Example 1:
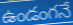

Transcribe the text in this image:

ఉండంగనే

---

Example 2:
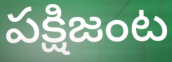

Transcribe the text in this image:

పక్షిజంట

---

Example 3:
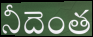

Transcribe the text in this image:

నీదెంత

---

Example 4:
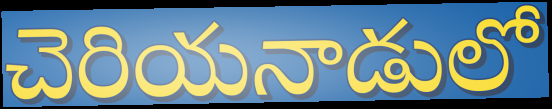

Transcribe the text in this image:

చెరియనాడులో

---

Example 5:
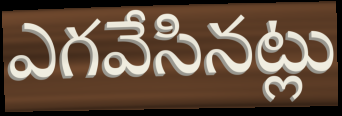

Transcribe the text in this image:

ఎగవేసినట్లు